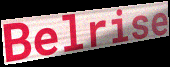
Belrise